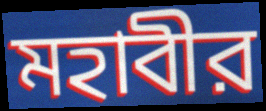
মহাবীর